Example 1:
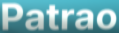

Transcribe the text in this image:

Patrao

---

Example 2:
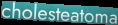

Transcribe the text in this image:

cholesteatoma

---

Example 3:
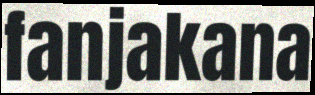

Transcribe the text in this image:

fanjakana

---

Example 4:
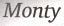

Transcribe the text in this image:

Monty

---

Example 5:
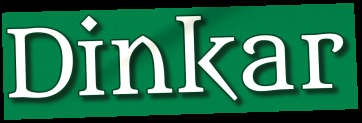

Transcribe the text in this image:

Dinkar